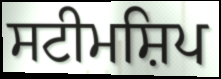
ਸਟੀਮਸ਼ਿਪ